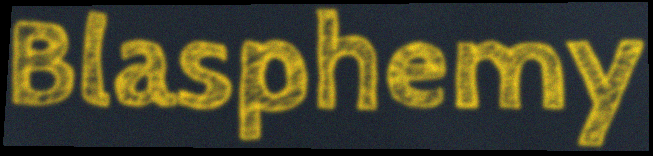
Blasphemy